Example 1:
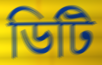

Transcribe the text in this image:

ডিটি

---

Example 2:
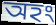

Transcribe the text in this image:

অহং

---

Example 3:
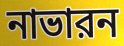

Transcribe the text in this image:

নাভারন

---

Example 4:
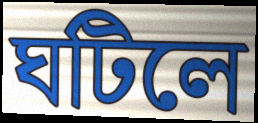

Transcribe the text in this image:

ঘটিলে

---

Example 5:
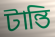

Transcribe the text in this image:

টান্তি